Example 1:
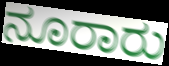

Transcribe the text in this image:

ನೂರಾರು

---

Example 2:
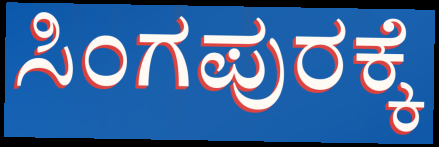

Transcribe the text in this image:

ಸಿಂಗಪುರಕ್ಕೆ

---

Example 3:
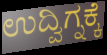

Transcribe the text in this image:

ಉದ್ವಿಗ್ನಕ್ಕೆ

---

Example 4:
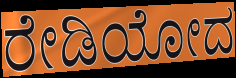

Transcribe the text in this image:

ರೇಡಿಯೋದ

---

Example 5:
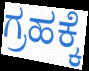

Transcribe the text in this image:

ಗ್ರಹಕ್ಕೆ